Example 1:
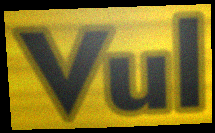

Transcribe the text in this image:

Vul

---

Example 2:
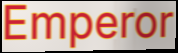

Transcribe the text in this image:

Emperor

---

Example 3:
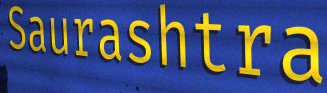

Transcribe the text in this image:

Saurashtra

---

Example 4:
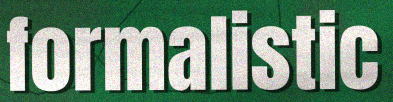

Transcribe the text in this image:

formalistic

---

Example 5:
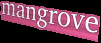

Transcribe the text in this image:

mangrove